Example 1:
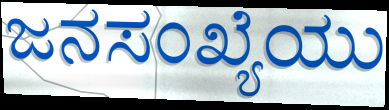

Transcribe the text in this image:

ಜನಸಂಖ್ಯೆಯು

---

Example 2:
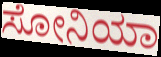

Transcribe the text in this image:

ಸೋನಿಯಾ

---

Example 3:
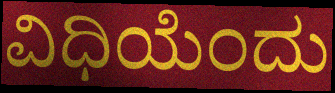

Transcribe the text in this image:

ವಿಧಿಯೆಂದು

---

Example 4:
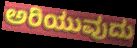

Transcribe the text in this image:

ಅರಿಯುವುದು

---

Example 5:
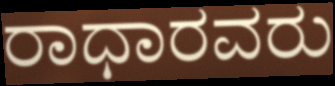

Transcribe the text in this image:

ರಾಧಾರವರು